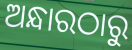
ଅନ୍ଧାରଠାରୁ